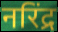
नरिंद्र